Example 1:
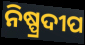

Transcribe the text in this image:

ନିଷ୍ପ୍ରଦୀପ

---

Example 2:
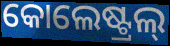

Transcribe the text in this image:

କୋଲେଷ୍ଟ୍ରଲ୍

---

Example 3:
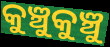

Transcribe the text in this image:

କୁଞ୍ଚୁକୁଞ୍ଚୁ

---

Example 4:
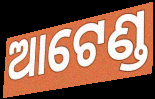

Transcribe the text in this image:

ଆଟେଣ୍ଡ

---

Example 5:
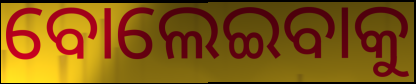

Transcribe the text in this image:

ବୋଲେଇବାକୁ